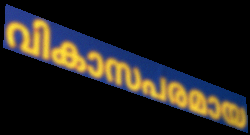
വികാസപരമായ